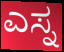
ಎಸ್ನ